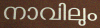
നാവിലും